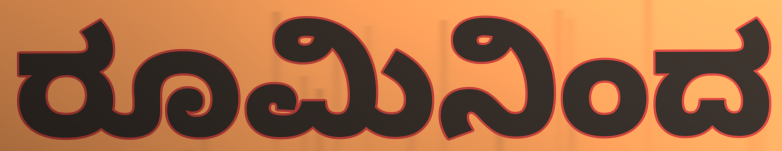
ರೂಮಿನಿಂದ